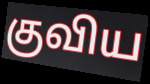
குவிய